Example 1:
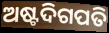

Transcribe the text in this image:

ଅଷ୍ଟଦିଗପତି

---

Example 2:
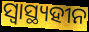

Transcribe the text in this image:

ସ୍ୱାସ୍ଥ୍ୟହୀନ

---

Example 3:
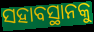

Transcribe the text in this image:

ସହାବସ୍ଥାନକୁ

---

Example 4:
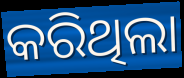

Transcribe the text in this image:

କରିଥିଲା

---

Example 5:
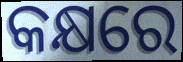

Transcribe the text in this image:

କକ୍ଷରେ